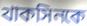
থাকসিনকে